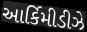
આર્કિમીડીઝે